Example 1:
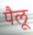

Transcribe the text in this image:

पैलू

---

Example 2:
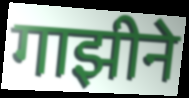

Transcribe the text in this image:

गाझीने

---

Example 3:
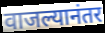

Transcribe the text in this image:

वाजल्यानंतर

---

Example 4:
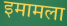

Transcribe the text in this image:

इमामला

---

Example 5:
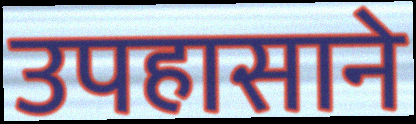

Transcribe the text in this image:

उपहासाने